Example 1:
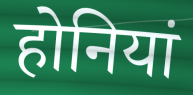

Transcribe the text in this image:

होनियां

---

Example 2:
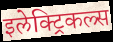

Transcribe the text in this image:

इलेक्ट्रिकल्स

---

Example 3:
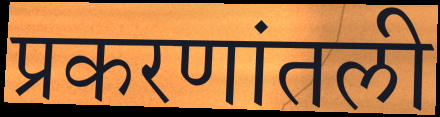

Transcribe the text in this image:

प्रकरणांतली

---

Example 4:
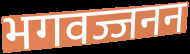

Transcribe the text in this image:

भगवज्जनन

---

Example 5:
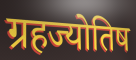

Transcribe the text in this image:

ग्रहज्योतिष